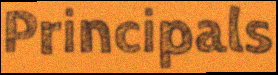
Principals